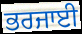
ਭਰਜਾਈ